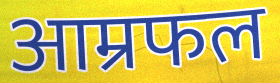
आम्रफल